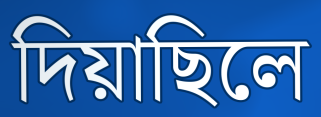
দিয়াছিলে